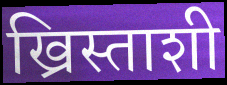
ख्रिस्ताशी